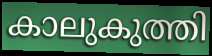
കാലുകുത്തി